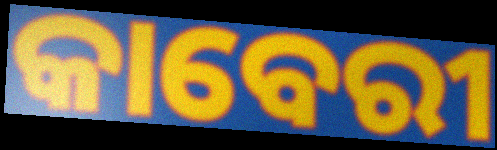
କାବେରୀ